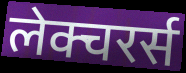
लेक्चरर्स